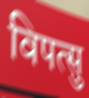
विपत्सु